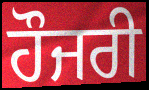
ਹੌਜਰੀ